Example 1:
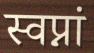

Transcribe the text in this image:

स्वप्नां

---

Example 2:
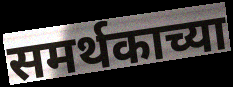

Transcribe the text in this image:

समर्थकाच्या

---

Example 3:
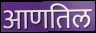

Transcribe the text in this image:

आणतिल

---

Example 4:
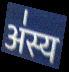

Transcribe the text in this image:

अ॑स्य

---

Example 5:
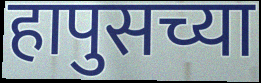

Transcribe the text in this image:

हापुसच्या